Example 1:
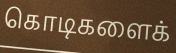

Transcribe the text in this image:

கொடிகளைக்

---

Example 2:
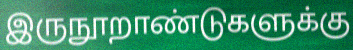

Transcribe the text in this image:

இருநூறாண்டுகளுக்கு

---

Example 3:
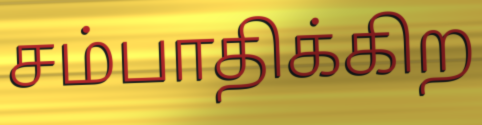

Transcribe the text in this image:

சம்பாதிக்கிற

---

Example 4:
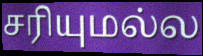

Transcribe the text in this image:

சரியுமல்ல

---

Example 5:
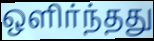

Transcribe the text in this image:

ஒளிர்ந்தது